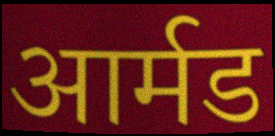
आर्मड